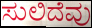
ಸುಲಿದೆವು